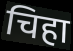
चिहा